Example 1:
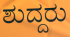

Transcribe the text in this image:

ಶುದ್ದರು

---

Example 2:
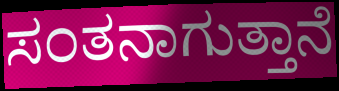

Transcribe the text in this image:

ಸಂತನಾಗುತ್ತಾನೆ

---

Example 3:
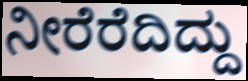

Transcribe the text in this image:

ನೀರೆರೆದಿದ್ದು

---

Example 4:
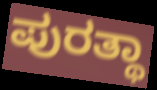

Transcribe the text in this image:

ಪುರತ್ಥಾ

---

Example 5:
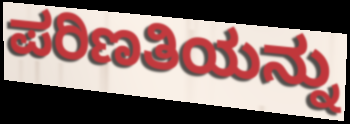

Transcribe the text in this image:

ಪರಿಣತಿಯನ್ನು